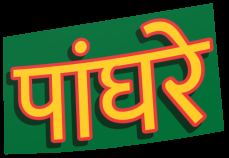
पांघरे